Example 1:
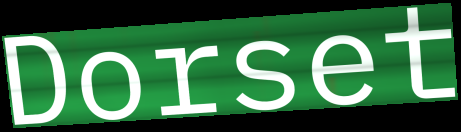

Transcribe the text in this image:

Dorset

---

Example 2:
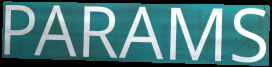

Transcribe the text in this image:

PARAMS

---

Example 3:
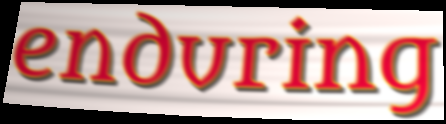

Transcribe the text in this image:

enduring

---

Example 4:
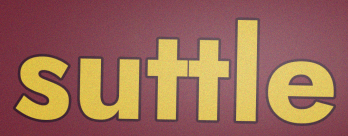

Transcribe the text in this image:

suttle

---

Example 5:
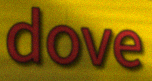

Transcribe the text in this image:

dove